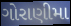
ગોરાણીમા